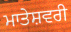
ਮਾਤੇਸ਼ਵਰੀ